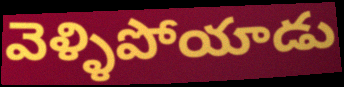
వెళ్ళిపోయాడు